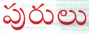
పురులు